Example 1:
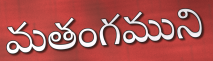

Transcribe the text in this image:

మతంగముని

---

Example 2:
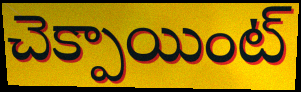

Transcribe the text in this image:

చెక్పాయింట్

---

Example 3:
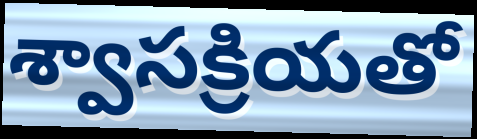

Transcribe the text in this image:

శ్వాసక్రియతో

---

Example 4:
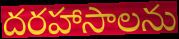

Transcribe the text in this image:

దరహాసాలను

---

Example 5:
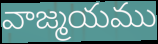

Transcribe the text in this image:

వాజ్మయము